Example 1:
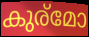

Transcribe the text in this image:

കുര്മോ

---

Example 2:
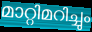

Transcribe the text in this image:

മാറ്റിമറിച്ചും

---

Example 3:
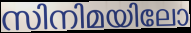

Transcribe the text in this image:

സിനിമയിലോ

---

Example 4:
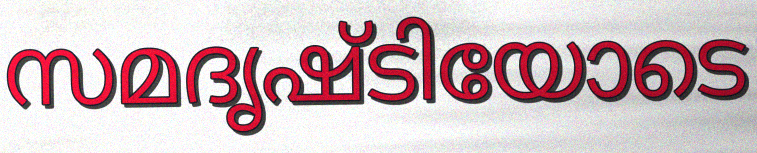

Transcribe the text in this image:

സമദൃഷ്ടിയോടെ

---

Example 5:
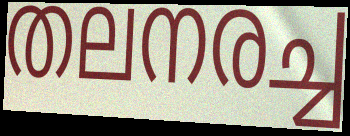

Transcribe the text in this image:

തലനരച്ച